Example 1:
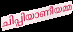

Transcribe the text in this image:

ചിപ്പിയാണീയമ്മ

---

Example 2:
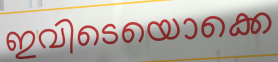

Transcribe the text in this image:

ഇവിടെയൊക്കെ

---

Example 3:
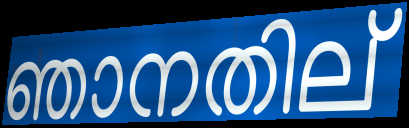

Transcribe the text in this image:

ഞാനതില്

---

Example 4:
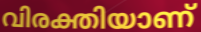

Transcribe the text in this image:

വിരക്തിയാണ്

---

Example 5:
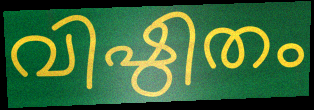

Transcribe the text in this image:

വിഷ്ഠിതം